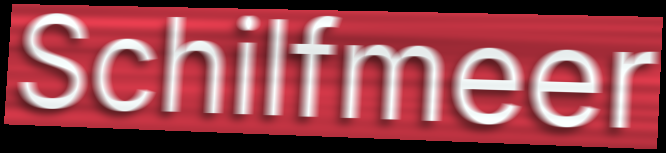
Schilfmeer